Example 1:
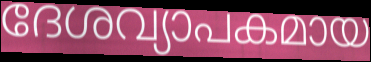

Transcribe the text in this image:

ദേശവ്യാപകമായ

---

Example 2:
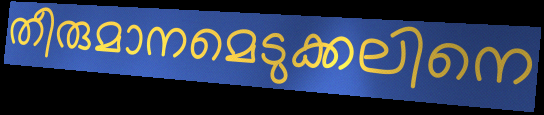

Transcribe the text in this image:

തീരുമാനമെടുക്കലിനെ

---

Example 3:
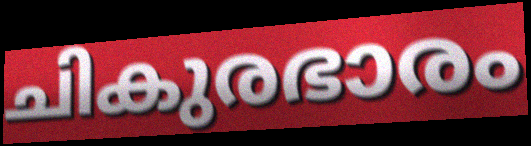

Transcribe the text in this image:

ചികുരഭാരം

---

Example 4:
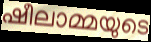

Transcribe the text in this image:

ഷീലാമ്മയുടെ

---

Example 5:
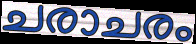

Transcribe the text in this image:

ചരാചരം